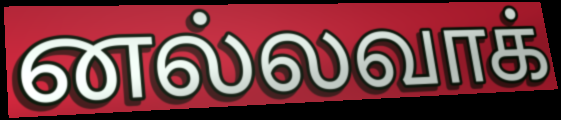
னல்லவாக்